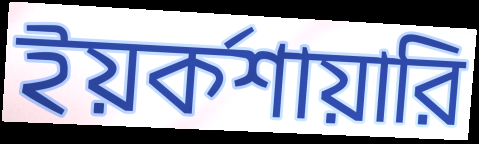
ইয়র্কশায়ারি